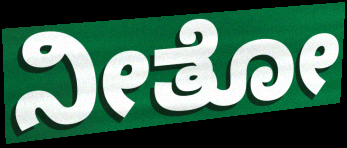
ನೀತೋ